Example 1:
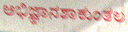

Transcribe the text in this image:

ಅಭಿಜ್ಞಾನಶಾಕುಂತಲ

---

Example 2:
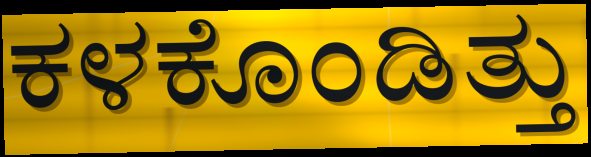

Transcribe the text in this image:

ಕಳಕೊಂಡಿತ್ತು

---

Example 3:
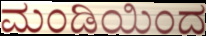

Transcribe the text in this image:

ಮಂಡಿಯಿಂದ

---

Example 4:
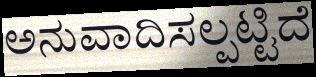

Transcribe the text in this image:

ಅನುವಾದಿಸಲ್ಪಟ್ಟಿದೆ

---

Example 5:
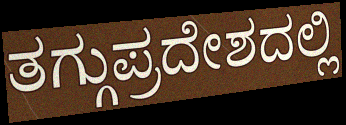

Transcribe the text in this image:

ತಗ್ಗುಪ್ರದೇಶದಲ್ಲಿ